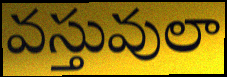
వస్తువులా